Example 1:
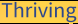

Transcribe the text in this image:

Thriving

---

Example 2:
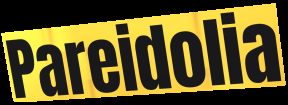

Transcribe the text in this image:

Pareidolia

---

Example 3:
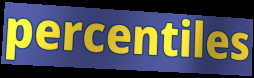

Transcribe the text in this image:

percentiles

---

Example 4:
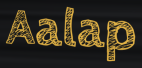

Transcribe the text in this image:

Aalap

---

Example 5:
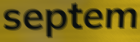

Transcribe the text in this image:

septem